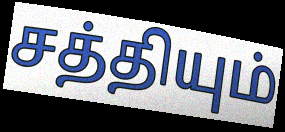
சத்தியும்